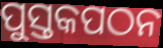
ପୁସ୍ତକପଠନ